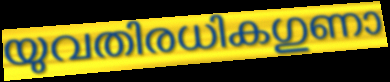
യുവതിരധികഗുണാ